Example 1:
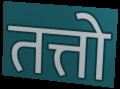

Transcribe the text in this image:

तत्तो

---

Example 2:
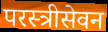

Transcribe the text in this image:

परस्त्रीसेवन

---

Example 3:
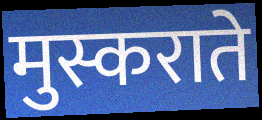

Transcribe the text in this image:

मुस्‍कराते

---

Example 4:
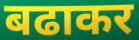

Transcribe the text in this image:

बढाकर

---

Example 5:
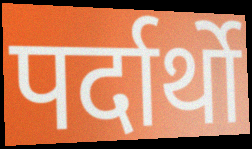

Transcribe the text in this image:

पर्दार्थो